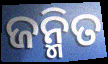
ଜନ୍ମିତ